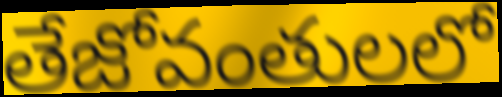
తేజోవంతులలో